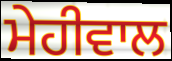
ਮੇਹੀਵਾਲ